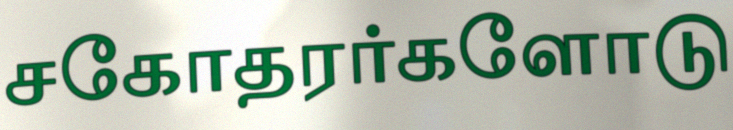
சகோதரர்களோடு